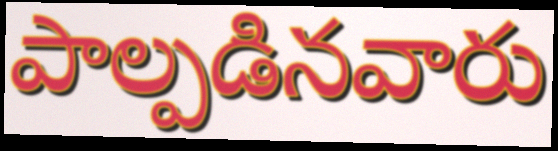
పాల్పడినవారు